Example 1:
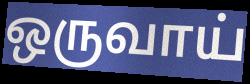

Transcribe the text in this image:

ஒருவாய்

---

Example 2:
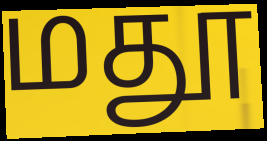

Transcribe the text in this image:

மதூ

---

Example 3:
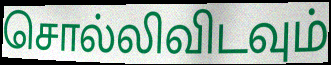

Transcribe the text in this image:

சொல்லிவிடவும்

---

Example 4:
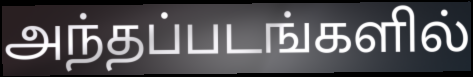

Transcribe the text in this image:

அந்தப்படங்களில்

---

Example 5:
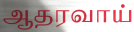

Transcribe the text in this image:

ஆதரவாய்